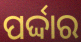
ପର୍ଦ୍ଦାର